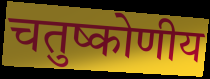
चतुष्कोणीय